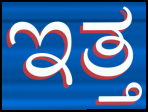
ಇತ್ತ